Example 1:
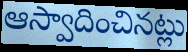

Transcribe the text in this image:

ఆస్వాదించినట్లు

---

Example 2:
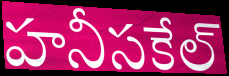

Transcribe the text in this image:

హనీసకేల్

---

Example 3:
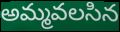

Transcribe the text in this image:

అమ్మవలసిన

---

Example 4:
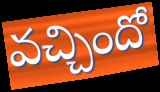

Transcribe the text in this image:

వచ్చిందో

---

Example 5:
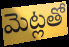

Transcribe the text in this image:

మెట్లతో